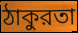
ঠাকুরতা